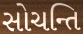
સોચન્તિ